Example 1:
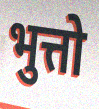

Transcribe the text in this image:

भुत्तो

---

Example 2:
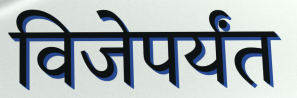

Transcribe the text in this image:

विजेपर्यंत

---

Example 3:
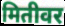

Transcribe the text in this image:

मितीवर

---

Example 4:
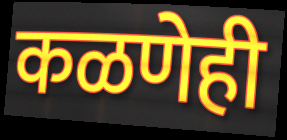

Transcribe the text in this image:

कळणेही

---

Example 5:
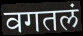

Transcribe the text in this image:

वगतलं